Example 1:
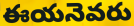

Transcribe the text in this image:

ఈయనెవరు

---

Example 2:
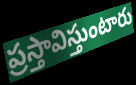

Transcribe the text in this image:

ప్రస్తావిస్తుంటారు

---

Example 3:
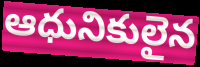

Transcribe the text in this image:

ఆధునికులైన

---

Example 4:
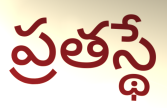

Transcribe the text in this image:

ప్రతస్థే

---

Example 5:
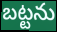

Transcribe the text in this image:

బట్టను